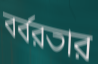
বর্বরতার